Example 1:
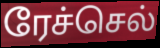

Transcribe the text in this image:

ரேச்செல்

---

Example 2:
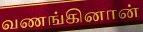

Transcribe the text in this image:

வணங்கினான்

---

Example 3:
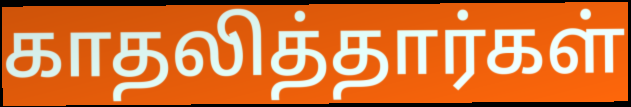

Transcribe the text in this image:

காதலித்தார்கள்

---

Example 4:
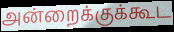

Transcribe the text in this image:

அன்றைக்குக்கூட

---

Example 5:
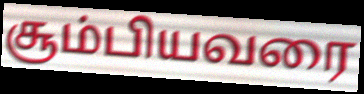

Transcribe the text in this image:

சூம்பியவரை